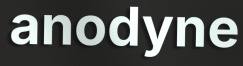
anodyne